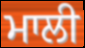
ਮਾਲੀ